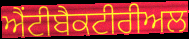
ਐਂਟੀਬੈਕਟੀਰੀਅਲ